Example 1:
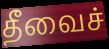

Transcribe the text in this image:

தீவைச்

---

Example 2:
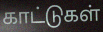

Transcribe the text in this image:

காட்டுகள்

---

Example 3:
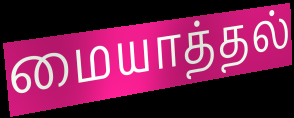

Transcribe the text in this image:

மையாத்தல்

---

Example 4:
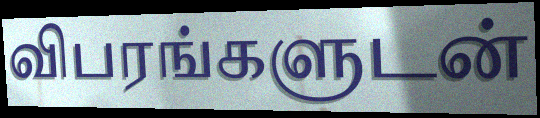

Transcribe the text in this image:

விபரங்களுடன்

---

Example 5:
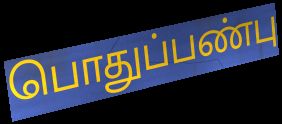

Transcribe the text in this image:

பொதுப்பண்பு